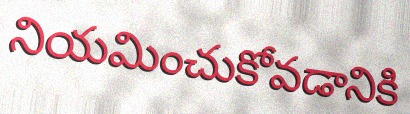
నియమించుకోవడానికి